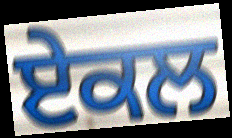
ਏਕਲ